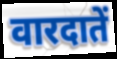
वारदातें